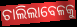
ଚାଲିଲାବେଳକୁ